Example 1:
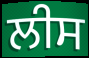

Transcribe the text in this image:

ਲੀਸ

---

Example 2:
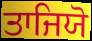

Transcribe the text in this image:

ਤਾਜਿਯੋ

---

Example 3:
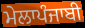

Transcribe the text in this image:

ਮੇਲਾਪੰਜਾਬੀ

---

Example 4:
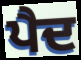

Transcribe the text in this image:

ਪੈਦ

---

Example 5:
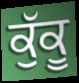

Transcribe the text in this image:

ਕੁੱਕੂ